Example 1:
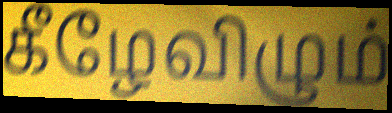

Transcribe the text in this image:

கீழேவிழும்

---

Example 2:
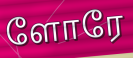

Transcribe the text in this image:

ளோரே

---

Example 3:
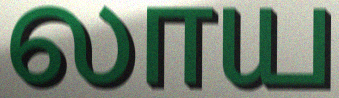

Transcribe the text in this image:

லாய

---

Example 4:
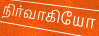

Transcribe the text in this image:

நிர்வாகியோ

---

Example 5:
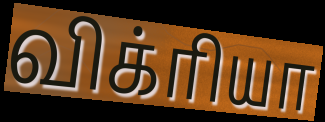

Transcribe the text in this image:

விக்ரியா